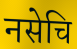
नसेचि